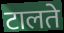
टालते